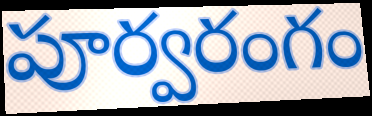
పూర్వరంగం